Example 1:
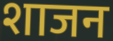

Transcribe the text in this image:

शाजन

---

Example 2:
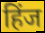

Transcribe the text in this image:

हिंज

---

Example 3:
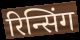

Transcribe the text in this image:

रिन्सिंग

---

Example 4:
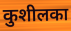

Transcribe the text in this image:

कुशीलका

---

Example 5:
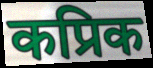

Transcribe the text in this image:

कप्रिक